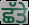
ਛੱਤੇ